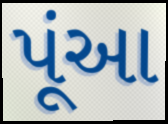
પૂંઆ